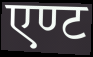
एण्ट